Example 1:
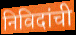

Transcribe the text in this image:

निविदांची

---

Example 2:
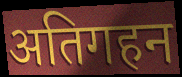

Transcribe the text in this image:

अतिगहन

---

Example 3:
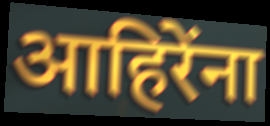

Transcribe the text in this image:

आहिरेंना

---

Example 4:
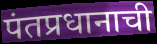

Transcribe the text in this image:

पंतप्रधानाची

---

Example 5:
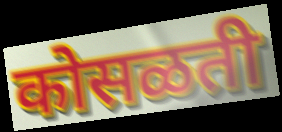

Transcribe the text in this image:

कोसळती